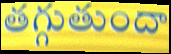
తగ్గుతుందా